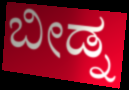
ಬೀಡ್ನ